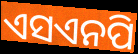
ଏସଏନପି